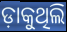
ଡ଼ାକୁଥିଲି